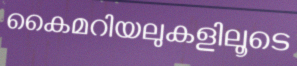
കൈമറിയലുകളിലൂടെ